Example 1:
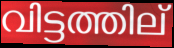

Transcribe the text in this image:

വിട്ടത്തില്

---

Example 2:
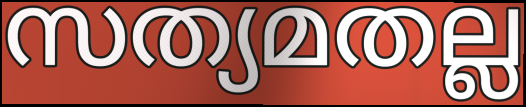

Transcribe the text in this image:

സത്യമതല്ല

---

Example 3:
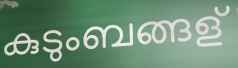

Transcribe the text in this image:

കുടുംബങ്ങള്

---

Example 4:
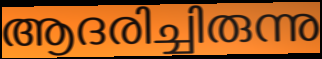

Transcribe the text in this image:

ആദരിച്ചിരുന്നു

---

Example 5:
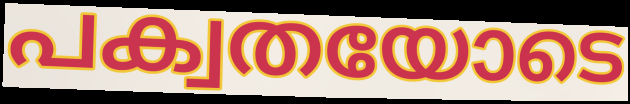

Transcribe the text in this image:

പക്വതയോടെ